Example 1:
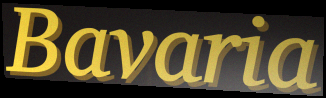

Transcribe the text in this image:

Bavaria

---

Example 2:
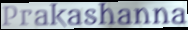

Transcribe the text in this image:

Prakashanna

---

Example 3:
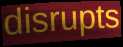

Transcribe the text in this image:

disrupts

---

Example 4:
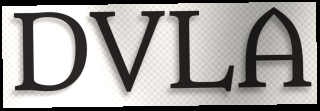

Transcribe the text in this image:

DVLA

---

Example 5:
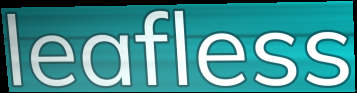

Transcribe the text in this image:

leafless